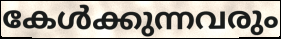
കേൾക്കുന്നവരും